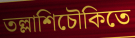
তল্লাশিচৌকিতে